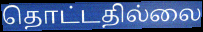
தொட்டதில்லை